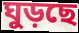
ঘুড়ছে